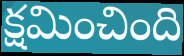
క్షమించింది